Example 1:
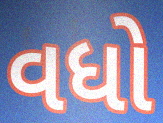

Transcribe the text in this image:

વધો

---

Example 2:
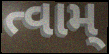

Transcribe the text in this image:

ત્વામ્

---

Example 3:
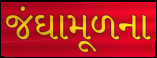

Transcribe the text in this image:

જંઘામૂળના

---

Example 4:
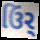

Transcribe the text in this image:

ઉિર્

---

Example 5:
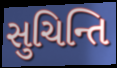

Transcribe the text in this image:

સુચિન્તિ